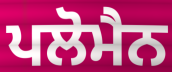
ਪਲੋਮੈਨ